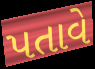
પતાવે